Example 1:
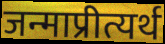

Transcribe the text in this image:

जन्माप्रीत्यर्थ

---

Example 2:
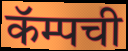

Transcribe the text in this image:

कॅम्पची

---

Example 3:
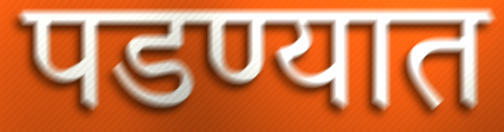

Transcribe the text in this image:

पडण्यात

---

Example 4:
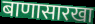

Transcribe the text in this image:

बाणासारखा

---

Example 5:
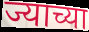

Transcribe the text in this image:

ज्याच्या